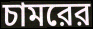
চামরের